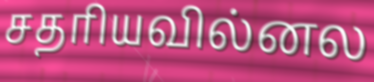
சதரியவில்னல